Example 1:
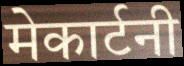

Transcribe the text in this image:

मेकार्टनी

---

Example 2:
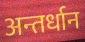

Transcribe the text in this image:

अन्तर्धान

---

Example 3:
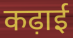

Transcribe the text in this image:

कढ़ाई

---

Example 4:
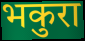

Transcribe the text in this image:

भकुरा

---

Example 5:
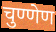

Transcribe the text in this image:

चुण्णेण